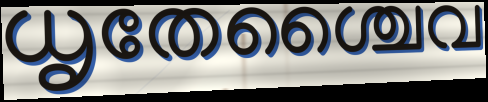
ധൃതേശ്ചൈവ